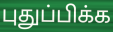
புதுப்பிக்க